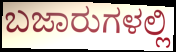
ಬಜಾರುಗಳಲ್ಲಿ